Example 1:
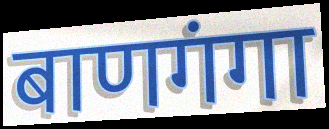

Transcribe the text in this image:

बाणगंगा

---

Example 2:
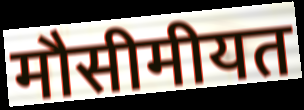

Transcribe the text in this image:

मौसीमीयत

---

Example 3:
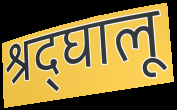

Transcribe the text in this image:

श्रद्घालू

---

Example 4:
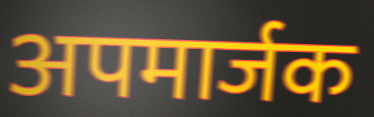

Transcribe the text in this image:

अपमार्जक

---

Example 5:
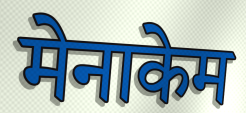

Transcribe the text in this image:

मेनाकेम